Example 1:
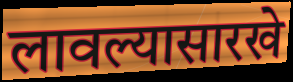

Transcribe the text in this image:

लावल्यासारखे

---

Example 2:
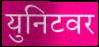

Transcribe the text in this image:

युनिटवर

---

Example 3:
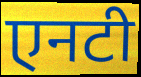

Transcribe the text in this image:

एनटी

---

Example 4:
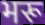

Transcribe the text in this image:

भरू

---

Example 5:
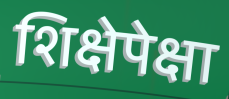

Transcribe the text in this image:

शिक्षेपेक्षा